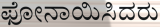
ಫೋನಾಯಿಸಿದರು